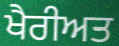
ਖੈਰੀਅਤ